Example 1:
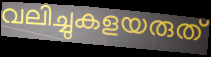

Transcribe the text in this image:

വലിച്ചുകളയരുത്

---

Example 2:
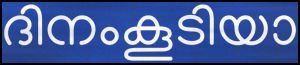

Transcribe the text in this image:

ദിനംകൂടിയാ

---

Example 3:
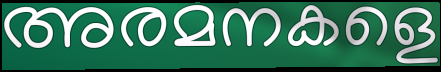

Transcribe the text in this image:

അരമനകളെ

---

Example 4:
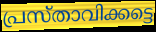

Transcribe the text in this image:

പ്രസ്താവിക്കട്ടെ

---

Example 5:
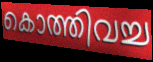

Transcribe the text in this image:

കൊത്തിവച്ച